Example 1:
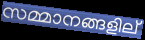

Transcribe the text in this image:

സമ്മാനങ്ങളില്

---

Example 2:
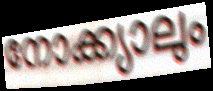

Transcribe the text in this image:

നോക്ക്യാലും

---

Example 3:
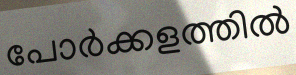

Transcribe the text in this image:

പോർക്കളത്തിൽ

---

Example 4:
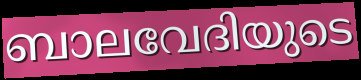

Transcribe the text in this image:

ബാലവേദിയുടെ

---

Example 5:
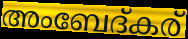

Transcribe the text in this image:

അംബേദ്കര്